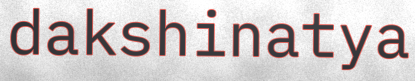
dakshinatya